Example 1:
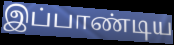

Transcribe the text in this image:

இப்பாண்டிய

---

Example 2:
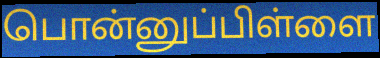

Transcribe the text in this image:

பொன்னுப்பிள்ளை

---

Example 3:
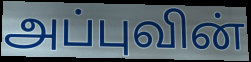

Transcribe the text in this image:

அப்புவின்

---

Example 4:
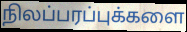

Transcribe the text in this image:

நிலப்பரப்புக்களை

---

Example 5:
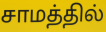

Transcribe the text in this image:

சாமத்தில்